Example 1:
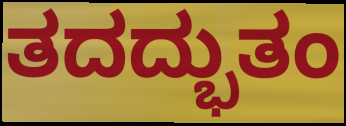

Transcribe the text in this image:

ತದದ್ಭುತಂ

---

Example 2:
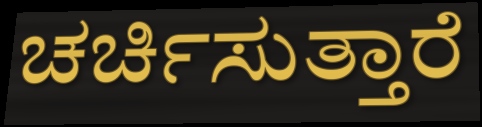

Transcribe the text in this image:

ಚರ್ಚಿಸುತ್ತಾರೆ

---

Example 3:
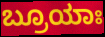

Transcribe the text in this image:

ಬ್ರೂಯಾಃ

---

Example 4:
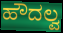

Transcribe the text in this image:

ಹೌದಲ್ವ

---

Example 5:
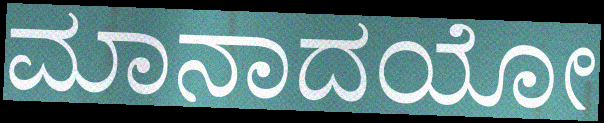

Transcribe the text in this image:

ಮಾನಾದಯೋ